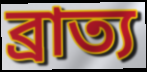
ব্রাত্য